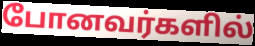
போனவர்களில்